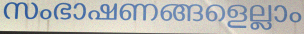
സംഭാഷണങ്ങളെല്ലാം